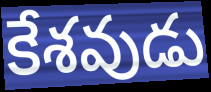
కేశవుడు